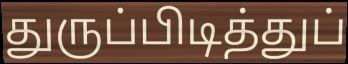
துருப்பிடித்துப்